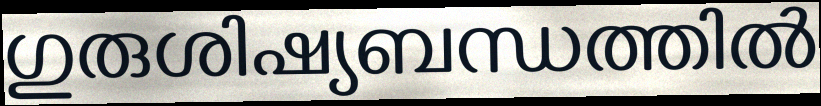
ഗുരുശിഷ്യബന്ധത്തിൽ